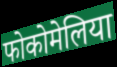
फोकोमेलिया